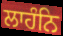
ਲਾਹੰਨਿ